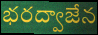
భరద్వాజేన